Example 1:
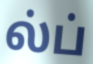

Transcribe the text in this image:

ல்ப்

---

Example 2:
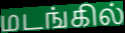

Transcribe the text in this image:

மடங்கில்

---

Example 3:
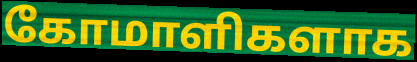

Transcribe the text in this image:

கோமாளிகளாக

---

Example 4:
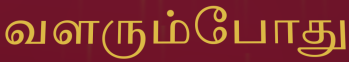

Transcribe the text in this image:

வளரும்போது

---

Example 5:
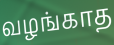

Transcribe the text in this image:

வழங்காத